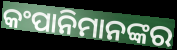
କଂପାନିମାନଙ୍କର